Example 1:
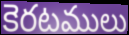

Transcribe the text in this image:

కెరటములు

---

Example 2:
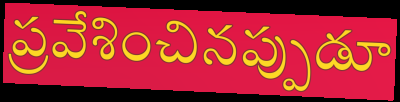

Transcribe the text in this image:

ప్రవేశించినప్పుడూ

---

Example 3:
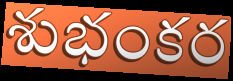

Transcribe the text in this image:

శుభంకర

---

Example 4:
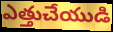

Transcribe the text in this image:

ఎత్తుచేయుడి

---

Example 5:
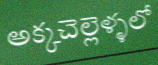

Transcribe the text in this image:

అక్కచెల్లెళ్ళలో